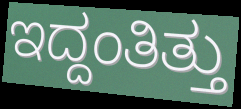
ಇದ್ದಂತಿತ್ತು